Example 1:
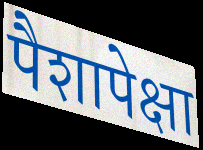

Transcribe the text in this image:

पैशापेक्षा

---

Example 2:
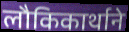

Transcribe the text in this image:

लौकिकार्थाने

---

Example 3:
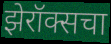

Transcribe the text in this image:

झेरॉक्सचा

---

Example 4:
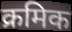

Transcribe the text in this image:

क्रमिक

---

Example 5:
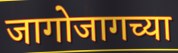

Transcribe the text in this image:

जागोजागच्या